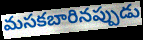
మసకబారినప్పుడు